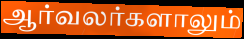
ஆர்வலர்களாலும்